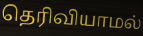
தெரிவியாமல்